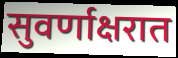
सुवर्णाक्षरात